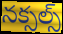
నక్సల్స్